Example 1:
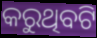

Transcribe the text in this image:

କରୁଥିବଟି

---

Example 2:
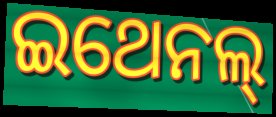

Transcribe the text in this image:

ଇଥେନଲ୍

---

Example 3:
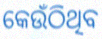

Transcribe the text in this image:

କେଉଁଠିଥିବ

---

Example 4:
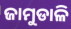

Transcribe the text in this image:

ଜାମୁଡାଳି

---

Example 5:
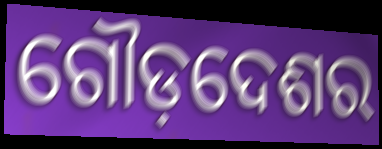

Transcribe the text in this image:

ଗୌଡ଼ଦେଶର